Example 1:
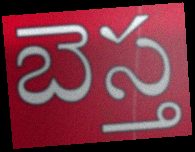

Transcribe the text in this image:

బెస్త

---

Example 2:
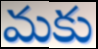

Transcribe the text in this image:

మకు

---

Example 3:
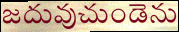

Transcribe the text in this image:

జదువుచుండెను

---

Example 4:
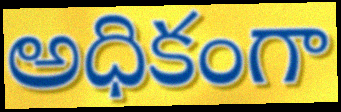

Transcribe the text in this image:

అధికంగా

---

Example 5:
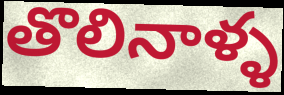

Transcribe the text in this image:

తొలినాళ్ళ